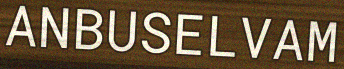
ANBUSELVAM